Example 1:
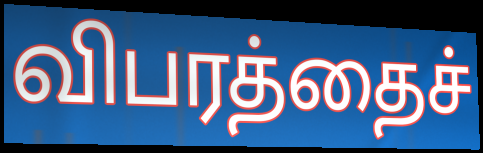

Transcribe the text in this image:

விபரத்தைச்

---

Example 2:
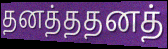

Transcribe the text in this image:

தனத்ததனத்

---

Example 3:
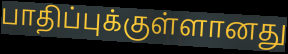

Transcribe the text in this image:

பாதிப்புக்குள்ளானது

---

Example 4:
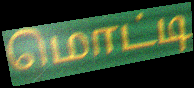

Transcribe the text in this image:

மொட்டி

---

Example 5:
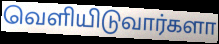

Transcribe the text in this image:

வெளியிடுவார்களா